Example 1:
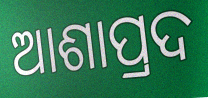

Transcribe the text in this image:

ଆଶାପ୍ରଦ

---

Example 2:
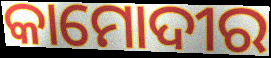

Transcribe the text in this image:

କାମୋଦୀର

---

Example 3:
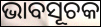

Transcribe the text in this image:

ଭାବସୂଚକ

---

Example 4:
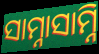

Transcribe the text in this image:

ସାମ୍ନାସାମ୍ନି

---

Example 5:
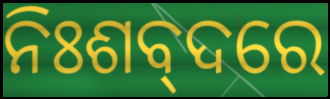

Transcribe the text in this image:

ନିଃଶବ୍‌ଦରେ